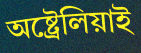
অষ্ট্ৰেলিয়াই